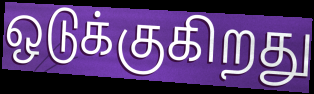
ஒடுக்குகிறது